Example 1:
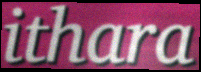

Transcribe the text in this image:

ithara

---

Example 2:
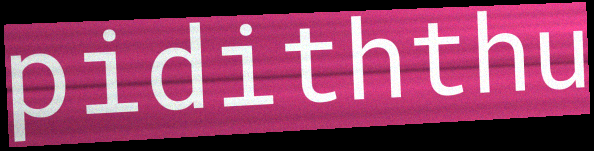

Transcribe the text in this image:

pidiththu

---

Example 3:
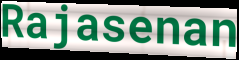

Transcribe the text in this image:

Rajasenan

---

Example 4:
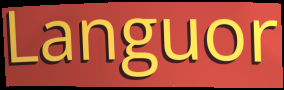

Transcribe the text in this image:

Languor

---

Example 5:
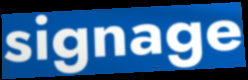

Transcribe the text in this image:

signage